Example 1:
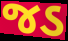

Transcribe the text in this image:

જડ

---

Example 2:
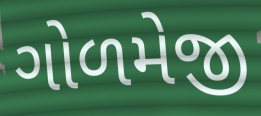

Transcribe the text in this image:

ગોળમેજી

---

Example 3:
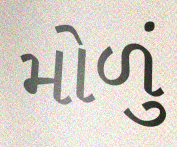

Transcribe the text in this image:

મોળું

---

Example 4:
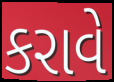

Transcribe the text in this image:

કરાવે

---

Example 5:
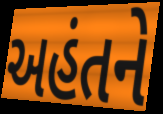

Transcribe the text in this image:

અહંતને